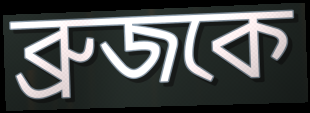
ব্রুজকে